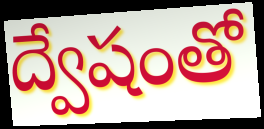
ద్వేషంతో